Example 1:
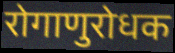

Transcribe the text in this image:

रोगाणुरोधक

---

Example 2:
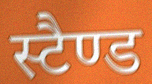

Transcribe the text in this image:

स्टैण्ड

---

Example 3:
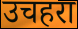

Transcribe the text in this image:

उचहरा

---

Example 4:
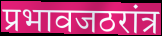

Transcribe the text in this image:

प्रभावजठरांत्र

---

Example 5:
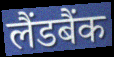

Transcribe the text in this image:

लैंडबैंक